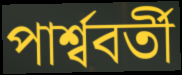
পাৰ্শ্ববৰ্তী